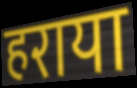
हराया